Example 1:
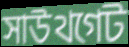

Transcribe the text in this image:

সাউথগেট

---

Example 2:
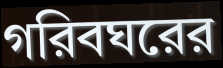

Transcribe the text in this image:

গরিবঘরের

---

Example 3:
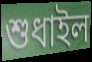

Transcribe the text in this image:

শুধাইল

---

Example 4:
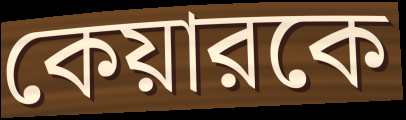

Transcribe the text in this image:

কেয়ারকে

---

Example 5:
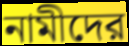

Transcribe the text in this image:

নামীদের